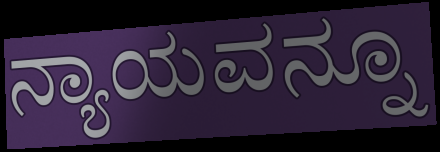
ನ್ಯಾಯವನ್ನೂ